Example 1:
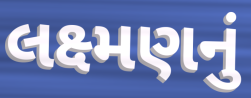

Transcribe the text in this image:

લક્ષ્મણનું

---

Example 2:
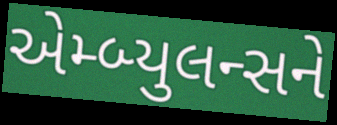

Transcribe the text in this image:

એમ્બ્યુલન્સને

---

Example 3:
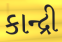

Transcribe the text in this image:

કાન્દ્રી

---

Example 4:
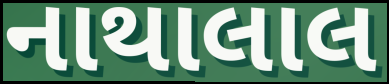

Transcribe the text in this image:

નાથાલાલ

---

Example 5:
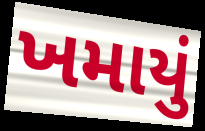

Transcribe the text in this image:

ખમાયું